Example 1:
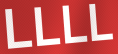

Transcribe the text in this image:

LLLL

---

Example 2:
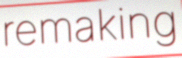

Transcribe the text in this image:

remaking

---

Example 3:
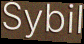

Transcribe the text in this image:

Sybil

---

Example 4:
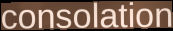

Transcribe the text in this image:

consolation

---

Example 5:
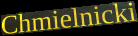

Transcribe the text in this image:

Chmielnicki